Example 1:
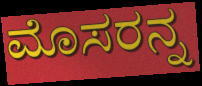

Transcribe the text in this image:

ಮೊಸರನ್ನ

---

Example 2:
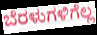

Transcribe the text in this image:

ಬೆರಳುಗಳಿಗೆಲ್ಲ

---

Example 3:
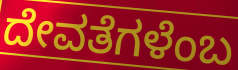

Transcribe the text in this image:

ದೇವತೆಗಳೆಂಬ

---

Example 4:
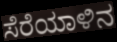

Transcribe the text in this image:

ಸೆರೆಯಾಳಿನ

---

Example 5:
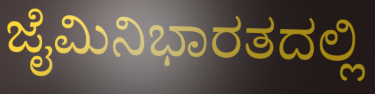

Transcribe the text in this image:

ಜೈಮಿನಿಭಾರತದಲ್ಲಿ